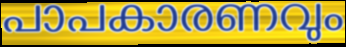
പാപകാരണവും